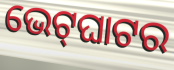
ଭେଟ୍‌ଘାଟର